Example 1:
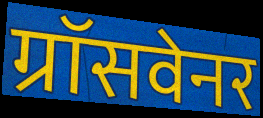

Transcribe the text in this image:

ग्रॉसवेनर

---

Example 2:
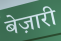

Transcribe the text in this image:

बेज़ारी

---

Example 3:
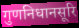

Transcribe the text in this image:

गुणनिधानसूरि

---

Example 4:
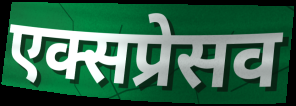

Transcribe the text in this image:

एक्सप्रेसव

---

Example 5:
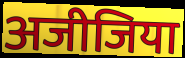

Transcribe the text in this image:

अजीजिया